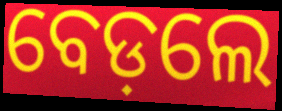
ବେଡ଼ଲେ